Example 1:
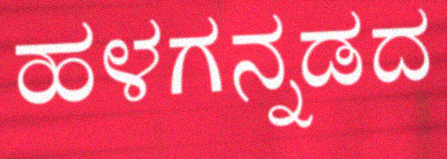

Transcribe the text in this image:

ಹಳಗನ್ನಡದ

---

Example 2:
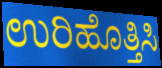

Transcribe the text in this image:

ಉರಿಹೊತ್ತಿಸಿ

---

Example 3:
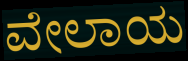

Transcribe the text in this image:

ವೇಲಾಯ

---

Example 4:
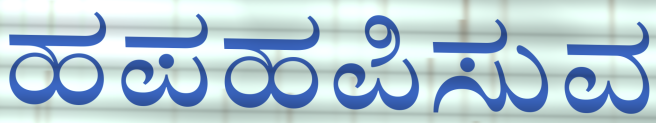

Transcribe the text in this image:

ಹಪಹಪಿಸುವ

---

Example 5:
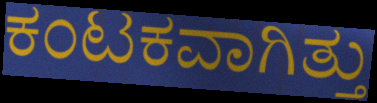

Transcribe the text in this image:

ಕಂಟಕವಾಗಿತ್ತು